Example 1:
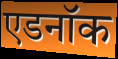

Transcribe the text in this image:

एडनॉक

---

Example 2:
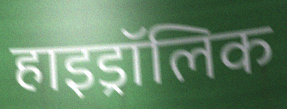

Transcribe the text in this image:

हाइड्रॉलिक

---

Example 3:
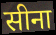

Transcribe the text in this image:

सीना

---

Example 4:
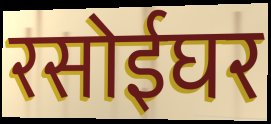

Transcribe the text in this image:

रसोईघर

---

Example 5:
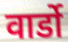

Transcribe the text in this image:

वार्डो